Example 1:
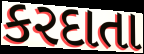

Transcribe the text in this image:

કરદાતા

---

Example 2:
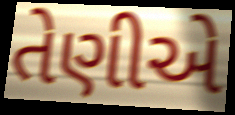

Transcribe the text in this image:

તેણીએ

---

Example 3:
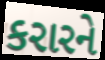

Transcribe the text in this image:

કરારને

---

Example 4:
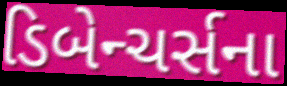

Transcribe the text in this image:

ડિબેન્ચર્સના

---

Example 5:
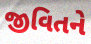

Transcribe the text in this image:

જીવિતને